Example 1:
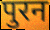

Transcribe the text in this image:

पुरन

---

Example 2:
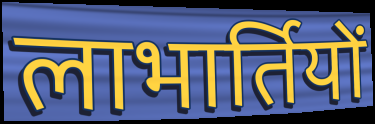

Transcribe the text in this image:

लाभार्तियों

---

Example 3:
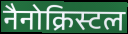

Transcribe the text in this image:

नैनोक्रिस्टल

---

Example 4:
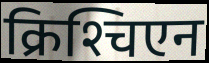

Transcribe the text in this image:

क्रिश्चिएन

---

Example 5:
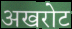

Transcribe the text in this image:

अखरोट